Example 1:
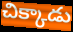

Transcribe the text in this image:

చిక్కాడు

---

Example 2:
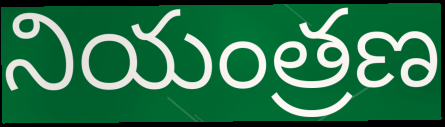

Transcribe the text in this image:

నియంత్రణ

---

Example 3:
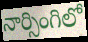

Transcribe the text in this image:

నార్సింగిలో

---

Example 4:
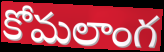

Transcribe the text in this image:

కోమలాంగ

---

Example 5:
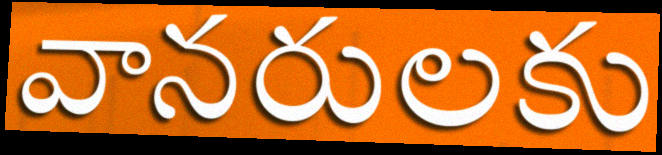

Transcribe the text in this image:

వానరులకు